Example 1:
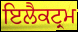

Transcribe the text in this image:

ਇਲੈਕਟ੍ਰਮ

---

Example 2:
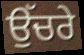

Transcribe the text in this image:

ਉੱਚਰੇ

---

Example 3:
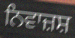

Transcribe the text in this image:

ਨਿਵਾਜ਼ਸ਼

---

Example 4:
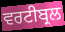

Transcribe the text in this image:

ਵਰਟੀਬ੍ਰਲ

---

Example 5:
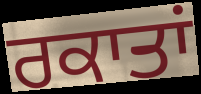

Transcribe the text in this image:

ਰਕਾਤਾਂ